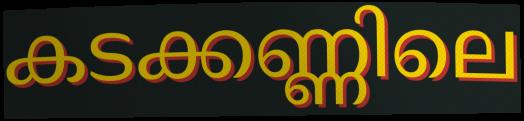
കടക്കണ്ണിലെ